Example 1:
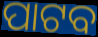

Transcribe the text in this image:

ପାଟବ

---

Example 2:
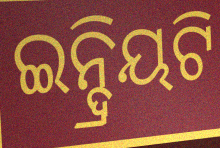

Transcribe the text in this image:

ଇନ୍ଦ୍ରିୟଟି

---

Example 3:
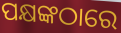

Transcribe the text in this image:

ପକ୍ଷଙ୍କଠାରେ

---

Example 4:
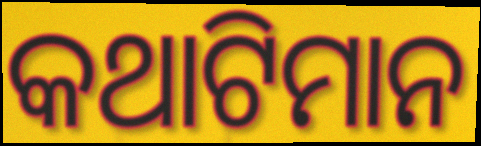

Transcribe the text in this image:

କଥାଟିମାନ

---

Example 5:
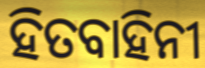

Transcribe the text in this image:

ହିତବାହିନୀ